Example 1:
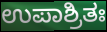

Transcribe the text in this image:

ಉಪಾಶ್ರಿತಃ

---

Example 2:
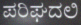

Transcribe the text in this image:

ಪರಿಘದಲಿ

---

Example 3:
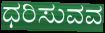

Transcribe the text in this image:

ಧರಿಸುವವ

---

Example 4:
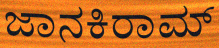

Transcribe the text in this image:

ಜಾನಕಿರಾಮ್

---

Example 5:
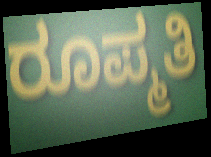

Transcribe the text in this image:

ರೂಪ್ಮತಿ